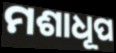
ମଶାଧୂପ